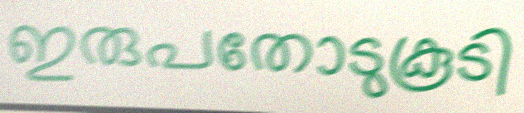
ഇരുപതോടുകൂടി